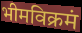
भीमविक्रमं